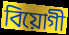
বিয়োগী